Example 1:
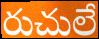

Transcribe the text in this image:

రుచులే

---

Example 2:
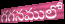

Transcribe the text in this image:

గగనములో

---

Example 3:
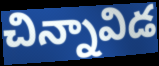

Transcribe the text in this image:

చిన్నావిడ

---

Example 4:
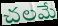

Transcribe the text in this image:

చలమే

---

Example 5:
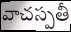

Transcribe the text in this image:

వాచస్పతీ